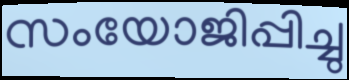
സംയോജിപ്പിച്ചു